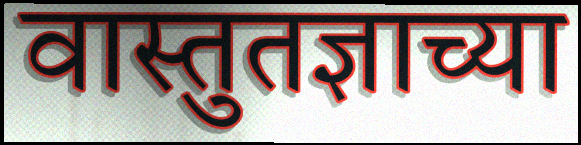
वास्तुतज्ञाच्या